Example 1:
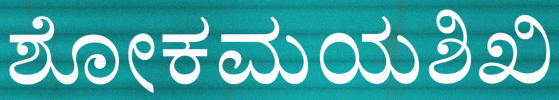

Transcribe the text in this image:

ಶೋಕಮಯಶಿಖಿ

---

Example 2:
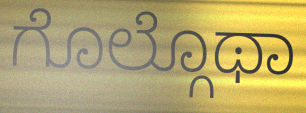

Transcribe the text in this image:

ಗೊಲ್ಗೊಥಾ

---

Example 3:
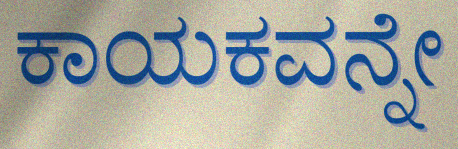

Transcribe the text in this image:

ಕಾಯಕವನ್ನೇ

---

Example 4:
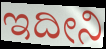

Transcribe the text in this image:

ಇದೀನಿ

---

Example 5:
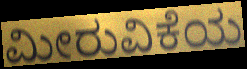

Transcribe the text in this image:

ಮೀರುವಿಕೆಯ